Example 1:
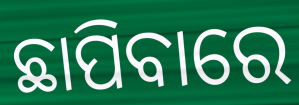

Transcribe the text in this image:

ଛାପିବାରେ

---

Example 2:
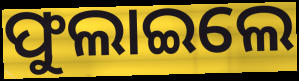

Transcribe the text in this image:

ଫୁଲାଇଲେ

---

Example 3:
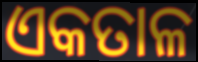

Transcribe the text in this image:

ଏକତାଳ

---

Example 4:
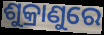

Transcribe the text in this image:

ଶୁକ୍ରାଣୁରେ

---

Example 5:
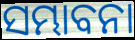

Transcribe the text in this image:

ସମ୍ଭାବନା